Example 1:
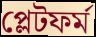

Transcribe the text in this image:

প্লেটফৰ্ম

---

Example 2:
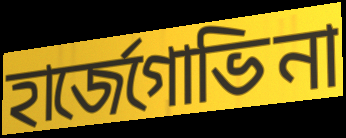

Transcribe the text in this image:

হাৰ্জেগোভিনা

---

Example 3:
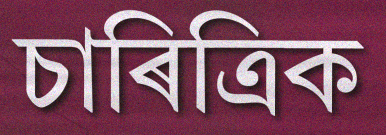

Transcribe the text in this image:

চাৰিত্ৰিক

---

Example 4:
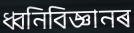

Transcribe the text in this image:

ধ্বনিবিজ্ঞানৰ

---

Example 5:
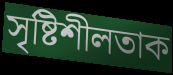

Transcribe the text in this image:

সৃষ্টিশীলতাক